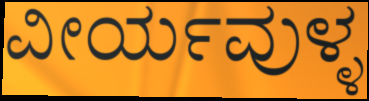
ವೀರ್ಯವುಳ್ಳ